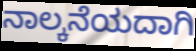
ನಾಲ್ಕನೆಯದಾಗಿ